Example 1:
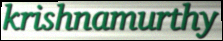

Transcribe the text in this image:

krishnamurthy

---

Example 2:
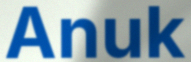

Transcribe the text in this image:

Anuk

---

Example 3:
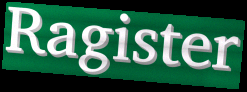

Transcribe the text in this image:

Ragister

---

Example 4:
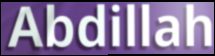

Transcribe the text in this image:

Abdillah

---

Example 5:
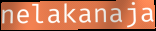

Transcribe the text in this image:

nelakanaja